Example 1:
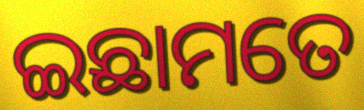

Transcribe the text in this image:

ଇଛାମତେ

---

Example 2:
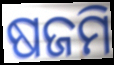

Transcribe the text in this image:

ଷଜମି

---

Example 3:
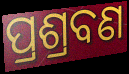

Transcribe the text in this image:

ପ୍ରଶ୍ରବଣ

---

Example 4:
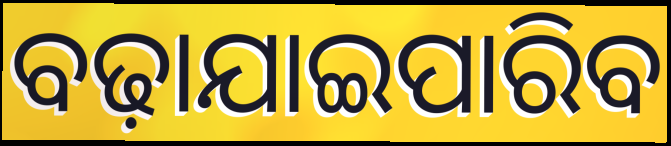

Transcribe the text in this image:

ବଢ଼ାଯାଇପାରିବ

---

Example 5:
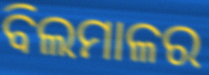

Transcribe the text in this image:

ବିଲମାଳର